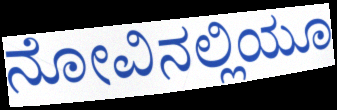
ನೋವಿನಲ್ಲಿಯೂ